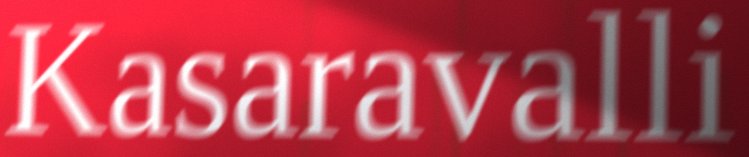
Kasaravalli